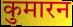
कुमारन